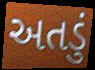
અતડું